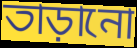
তাড়ানো